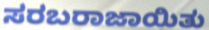
ಸರಬರಾಜಾಯಿತು